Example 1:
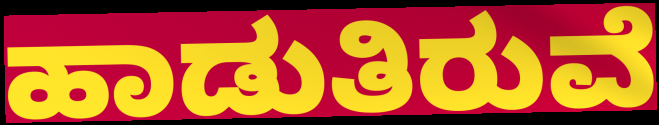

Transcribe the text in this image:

ಹಾಡುತಿರುವೆ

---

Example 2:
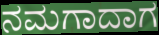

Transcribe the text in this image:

ನಮಗಾದಾಗ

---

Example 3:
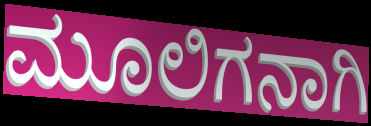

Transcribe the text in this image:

ಮೂಲಿಗನಾಗಿ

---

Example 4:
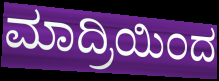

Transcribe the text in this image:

ಮಾದ್ರಿಯಿಂದ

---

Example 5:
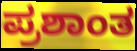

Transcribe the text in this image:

ಪ್ರಶಾಂತ